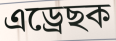
এড্ৰেছক